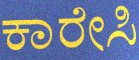
ಕಾರೇಸಿ